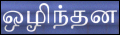
ஒழிந்தன